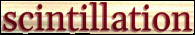
scintillation